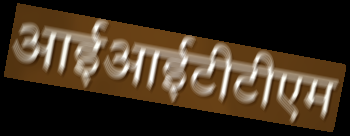
आईआईटीटीएम